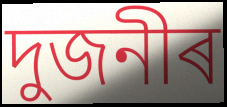
দুজনীৰ